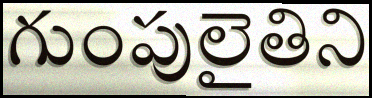
గుంపులైతిని